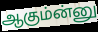
ஆகும்ன்னு